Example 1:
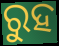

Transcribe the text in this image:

ରୁହ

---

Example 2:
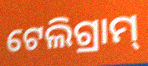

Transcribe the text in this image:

ଟେଲିଗ୍ରାମ୍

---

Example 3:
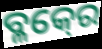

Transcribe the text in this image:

ବ୍ଳକ୍‍ରେ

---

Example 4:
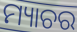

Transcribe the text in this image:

ମ୍ୟାଚର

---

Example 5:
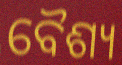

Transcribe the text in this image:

ବୈଶ୍ୟ